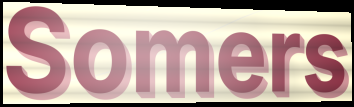
Somers